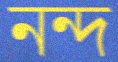
নন্দ